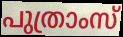
പുത്രാംസ്